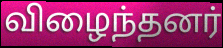
விழைந்தனர்